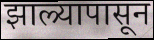
झाल्यापासून